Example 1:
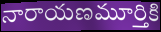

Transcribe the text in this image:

నారాయణమూర్తికి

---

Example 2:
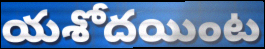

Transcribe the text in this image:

యశోదయింట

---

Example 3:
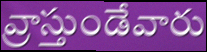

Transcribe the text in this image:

వ్రాస్తుండేవారు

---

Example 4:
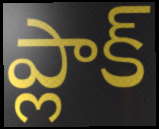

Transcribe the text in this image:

ప్లాక్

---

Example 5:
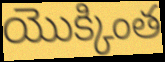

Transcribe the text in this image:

యొక్కింత